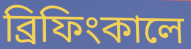
ব্রিফিংকালে